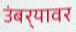
उंबर्‍यावर